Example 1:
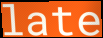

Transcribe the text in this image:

late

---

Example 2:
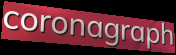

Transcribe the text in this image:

coronagraph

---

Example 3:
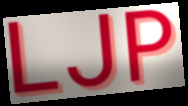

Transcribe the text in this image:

LJP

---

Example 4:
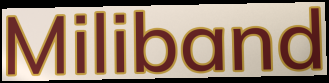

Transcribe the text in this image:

Miliband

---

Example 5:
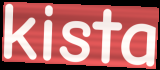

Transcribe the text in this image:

kista